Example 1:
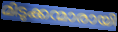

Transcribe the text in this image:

മിടുക്കന്മാരായി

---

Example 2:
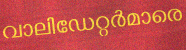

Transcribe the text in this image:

വാലിഡേറ്റർമാരെ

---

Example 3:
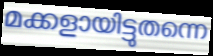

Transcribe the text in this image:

മക്കളായിട്ടുതന്നെ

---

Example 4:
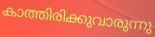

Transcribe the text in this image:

കാത്തിരിക്കുവാരുന്നു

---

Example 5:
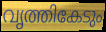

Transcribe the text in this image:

വൃത്തികേടും